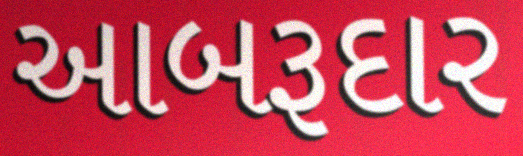
આબરૂદાર